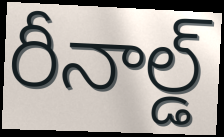
రీనాల్డ్